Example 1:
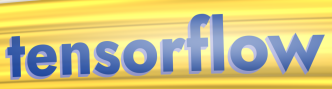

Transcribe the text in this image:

tensorflow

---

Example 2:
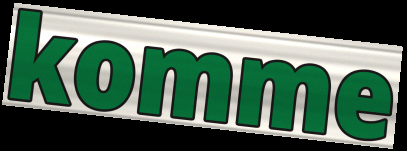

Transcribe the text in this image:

komme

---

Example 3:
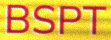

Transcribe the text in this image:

BSPT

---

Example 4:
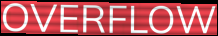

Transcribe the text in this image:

OVERFLOW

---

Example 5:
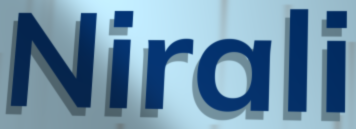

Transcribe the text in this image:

Nirali